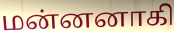
மன்னனாகி